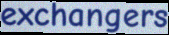
exchangers